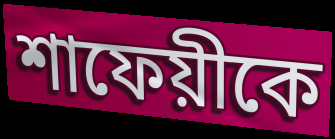
শাফেয়ীকে